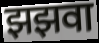
झझवा